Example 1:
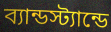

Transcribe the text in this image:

ব্যান্ডস্ট্যান্ডে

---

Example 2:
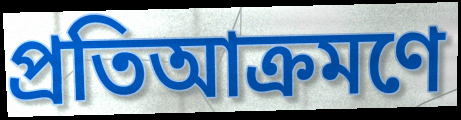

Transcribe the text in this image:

প্রতিআক্রমণে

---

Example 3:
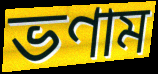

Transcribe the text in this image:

ভণাম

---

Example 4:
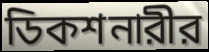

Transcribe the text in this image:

ডিকশনারীর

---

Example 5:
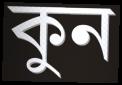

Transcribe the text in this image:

কুন